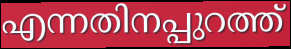
എന്നതിനപ്പുറത്ത്